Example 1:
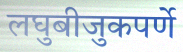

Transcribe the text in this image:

लघुबीजुकपर्णे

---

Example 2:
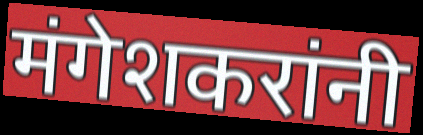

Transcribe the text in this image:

मंगेशकरांनी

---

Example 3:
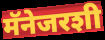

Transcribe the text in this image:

मॅनेजरशी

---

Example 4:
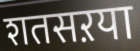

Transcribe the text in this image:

शतसऱया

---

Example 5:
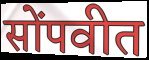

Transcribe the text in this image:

सोंपवीत